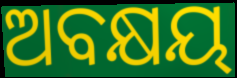
ଅବକ୍ଷୟ